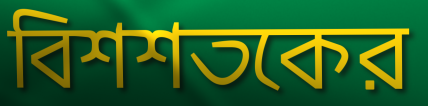
বিশশতকের